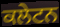
ਕਲੇਟਨ